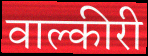
वाल्कीरी